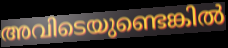
അവിടെയുണ്ടെങ്കിൽ